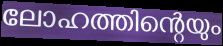
ലോഹത്തിന്റെയും